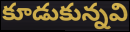
కూడుకున్నవి